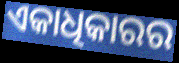
ଏକାଧିକାରର